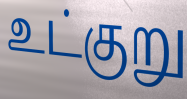
உட்குறு